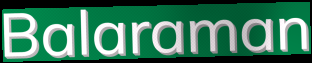
Balaraman